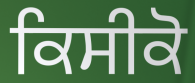
ਕਿਸੀਕੋ